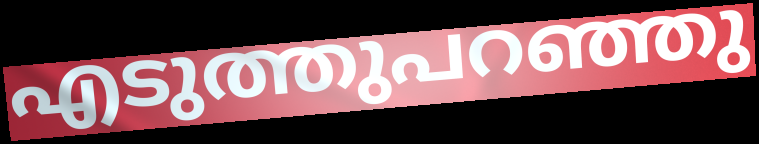
എടുത്തുപറഞ്ഞു